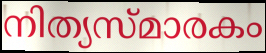
നിത്യസ്മാരകം